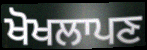
ਖੋਖਲਾਪਣ